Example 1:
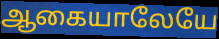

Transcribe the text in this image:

ஆகையாலேயே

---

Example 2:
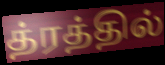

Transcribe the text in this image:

த்ரத்தில்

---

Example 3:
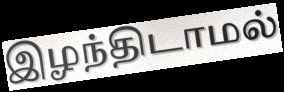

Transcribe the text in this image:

இழந்திடாமல்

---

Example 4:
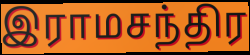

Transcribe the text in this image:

இராமசந்திர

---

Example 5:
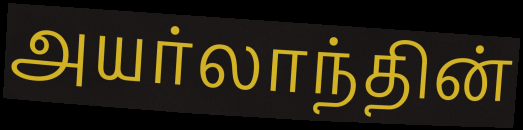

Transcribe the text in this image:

அயர்லாந்தின்